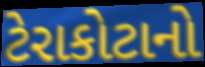
ટેરાકોટાનો